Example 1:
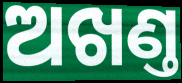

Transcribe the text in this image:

ଅଖଣ୍ତ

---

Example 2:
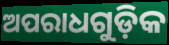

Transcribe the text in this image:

ଅପରାଧଗୁଡ଼ିକ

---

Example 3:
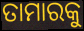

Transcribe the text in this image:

ତାମାରକୁ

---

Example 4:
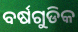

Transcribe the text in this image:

ବର୍ଷଗୁଡିକ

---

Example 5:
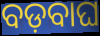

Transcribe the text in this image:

ବଡ଼ବାଘ